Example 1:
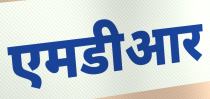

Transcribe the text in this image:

एमडीआर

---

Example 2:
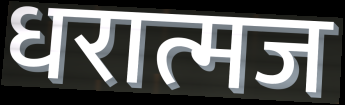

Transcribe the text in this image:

धरात्मज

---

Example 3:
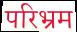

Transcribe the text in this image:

परिभ्रम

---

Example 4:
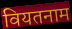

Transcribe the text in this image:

वियतनाम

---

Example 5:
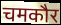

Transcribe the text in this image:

चमकौर